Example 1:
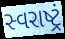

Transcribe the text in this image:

સ્વરાષ્ટ્રં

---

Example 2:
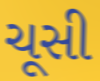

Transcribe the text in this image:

ચૂસી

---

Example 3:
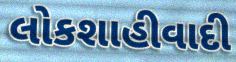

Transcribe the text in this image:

લોકશાહીવાદી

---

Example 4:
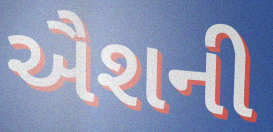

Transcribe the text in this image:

ઐશની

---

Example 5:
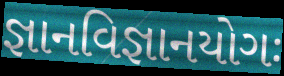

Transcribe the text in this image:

જ્ઞાનવિજ્ઞાનયોગઃ